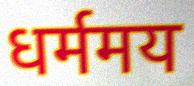
धर्ममय